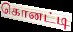
கொனட்டி